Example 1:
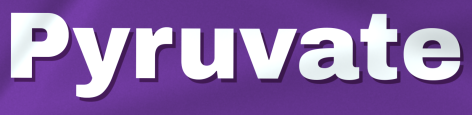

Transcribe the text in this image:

Pyruvate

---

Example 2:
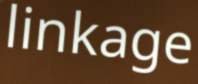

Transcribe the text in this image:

linkage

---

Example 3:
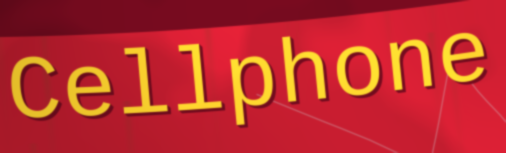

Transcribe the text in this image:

Cellphone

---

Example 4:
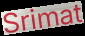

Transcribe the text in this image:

Srimat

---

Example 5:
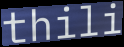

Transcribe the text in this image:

thili